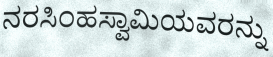
ನರಸಿಂಹಸ್ವಾಮಿಯವರನ್ನು